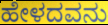
ಹೇಳದವನು